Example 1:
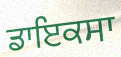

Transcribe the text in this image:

ਡਾਇਕਸਾ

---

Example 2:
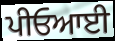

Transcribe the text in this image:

ਪੀਓਆਈ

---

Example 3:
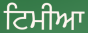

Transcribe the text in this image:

ਟਿਮੀਆ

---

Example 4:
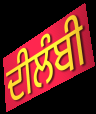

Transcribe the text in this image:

ਦੀਲੰਬੀ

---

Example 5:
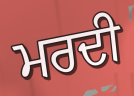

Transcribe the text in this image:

ਮਰਦੀ